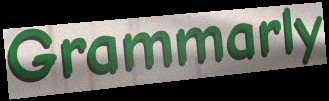
Grammarly